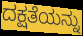
ದಕ್ಷತೆಯನ್ನು